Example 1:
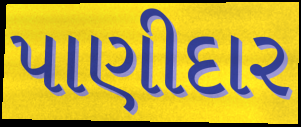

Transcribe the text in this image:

પાણીદાર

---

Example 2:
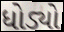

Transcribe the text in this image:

ધોડ્યો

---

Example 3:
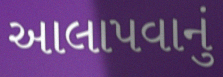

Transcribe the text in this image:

આલાપવાનું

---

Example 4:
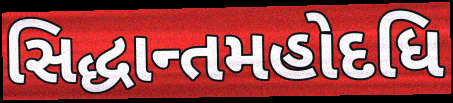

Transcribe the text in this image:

સિદ્ધાન્તમહોદધિ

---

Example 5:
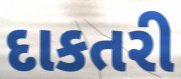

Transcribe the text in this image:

દાકતરી